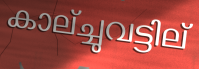
കാല്ച്ചുവട്ടില്